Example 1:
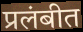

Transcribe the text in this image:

प्रलंबीत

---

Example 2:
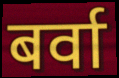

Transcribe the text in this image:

बर्वा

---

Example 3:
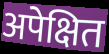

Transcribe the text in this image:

अपेक्षित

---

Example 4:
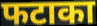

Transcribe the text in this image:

फटाका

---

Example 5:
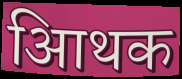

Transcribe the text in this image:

आिथक